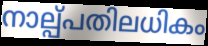
നാല്പ്പതിലധികം